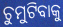
ଚୁମୁଟିବାକୁ